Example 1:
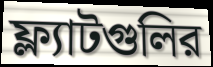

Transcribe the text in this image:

ফ্ল্যাটগুলির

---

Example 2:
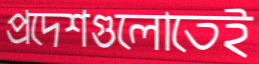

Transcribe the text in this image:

প্রদেশগুলোতেই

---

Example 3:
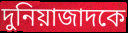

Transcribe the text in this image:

দুনিয়াজাদকে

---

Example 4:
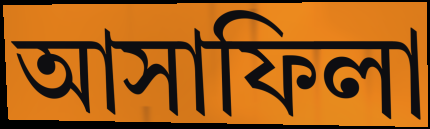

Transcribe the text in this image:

আসাফিলা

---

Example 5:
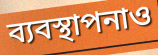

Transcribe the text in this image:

ব্যবস্থাপনাও